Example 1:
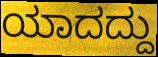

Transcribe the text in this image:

ಯಾದದ್ದು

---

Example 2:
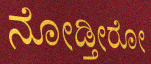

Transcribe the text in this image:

ನೋಡ್ತೀರೋ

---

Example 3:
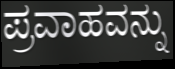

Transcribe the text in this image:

ಪ್ರವಾಹವನ್ನು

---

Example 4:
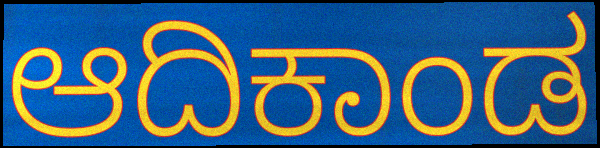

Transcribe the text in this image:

ಆದಿಕಾಂಡ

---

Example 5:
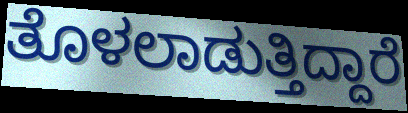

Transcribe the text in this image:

ತೊಳಲಾಡುತ್ತಿದ್ದಾರೆ